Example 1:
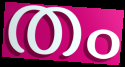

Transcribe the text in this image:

തം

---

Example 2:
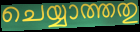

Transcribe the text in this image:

ചെയ്യാത്തതു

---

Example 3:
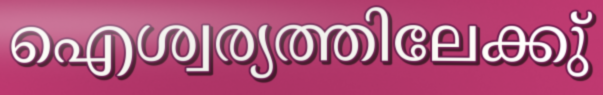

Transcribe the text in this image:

ഐശ്വര്യത്തിലേക്കു്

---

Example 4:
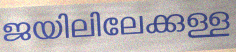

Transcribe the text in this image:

ജയിലിലേക്കുള്ള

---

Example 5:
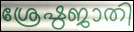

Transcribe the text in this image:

ശ്രേഷ്ഠജാതി